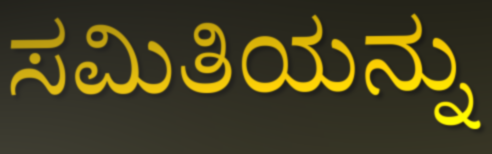
ಸಮಿತಿಯನ್ನು